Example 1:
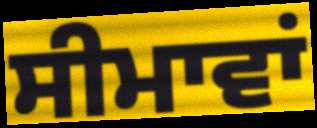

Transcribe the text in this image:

ਸੀਮਾਵਾਂ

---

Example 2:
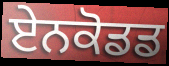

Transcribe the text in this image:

ਏਨਕੋਡਡ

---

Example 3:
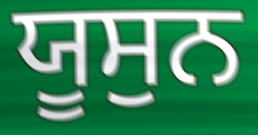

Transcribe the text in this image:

ਯੂਸੁਨ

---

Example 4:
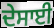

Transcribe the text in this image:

ਦੇਸਾਈ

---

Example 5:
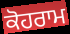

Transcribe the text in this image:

ਕੋਹਰਾਮ